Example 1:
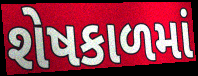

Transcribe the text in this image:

શેષકાળમાં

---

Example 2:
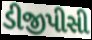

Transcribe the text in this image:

ડીજીપીસી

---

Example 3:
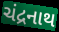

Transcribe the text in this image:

ચંદ્રનાથ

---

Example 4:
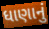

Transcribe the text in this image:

ધાણાનું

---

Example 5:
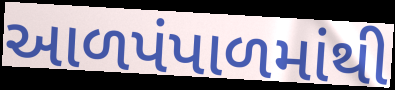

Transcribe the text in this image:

આળપંપાળમાંથી